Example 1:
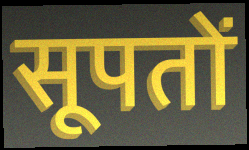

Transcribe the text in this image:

सूपतों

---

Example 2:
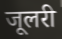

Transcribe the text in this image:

जूलरी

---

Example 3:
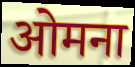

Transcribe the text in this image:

ओमना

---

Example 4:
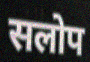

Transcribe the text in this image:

सलोप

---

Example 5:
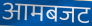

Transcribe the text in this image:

आमबजट